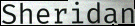
Sheridan